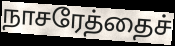
நாசரேத்தைச்